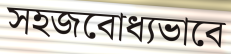
সহজবোধ্যভাবে